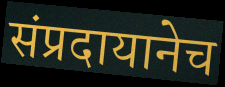
संप्रदायानेच